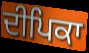
ਦੀਪਿਕਾ